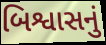
બિશ્વાસનું